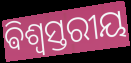
ଵିଶ୍ୱସ୍ତରୀୟ